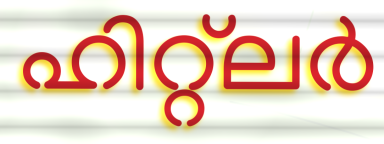
ഹിറ്റ്ലർ